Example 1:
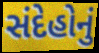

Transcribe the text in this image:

સંદેહોનું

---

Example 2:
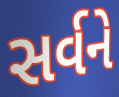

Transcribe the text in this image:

સર્વને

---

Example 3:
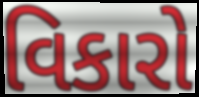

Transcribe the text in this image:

વિકારો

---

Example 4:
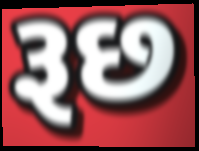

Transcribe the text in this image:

રૂછ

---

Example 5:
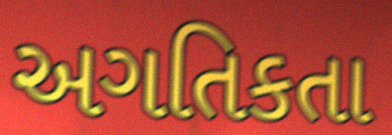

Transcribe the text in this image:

અગતિકતા